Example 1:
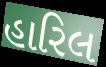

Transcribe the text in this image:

હારિલ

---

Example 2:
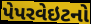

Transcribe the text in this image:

પેપરવેઇટનો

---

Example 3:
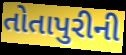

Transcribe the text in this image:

તોતાપુરીની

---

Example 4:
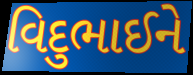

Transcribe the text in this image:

વિદુભાઈને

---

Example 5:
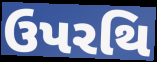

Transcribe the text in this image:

ઉપરથિ